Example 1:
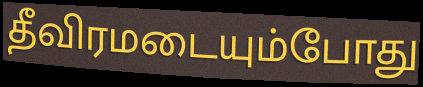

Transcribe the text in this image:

தீவிரமடையும்போது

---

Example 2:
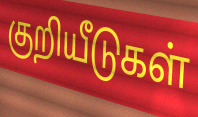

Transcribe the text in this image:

குறியீடுகள்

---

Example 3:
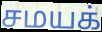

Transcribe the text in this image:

சமயக்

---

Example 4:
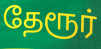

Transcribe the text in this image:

தேரூர்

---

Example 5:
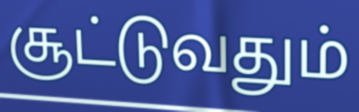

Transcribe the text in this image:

சூட்டுவதும்